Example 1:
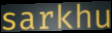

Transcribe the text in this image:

sarkhu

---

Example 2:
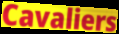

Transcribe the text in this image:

Cavaliers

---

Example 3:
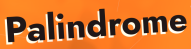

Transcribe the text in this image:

Palindrome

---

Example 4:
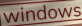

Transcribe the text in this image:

windows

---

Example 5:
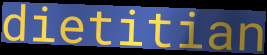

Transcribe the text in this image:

dietitian